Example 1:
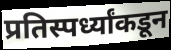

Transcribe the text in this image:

प्रतिस्पर्ध्यांकडून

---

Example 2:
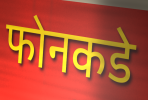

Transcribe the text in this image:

फोनकडे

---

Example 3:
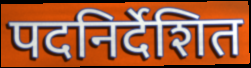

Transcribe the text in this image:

पदनिर्देशित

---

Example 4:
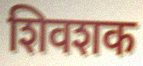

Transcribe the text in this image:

शिवशक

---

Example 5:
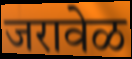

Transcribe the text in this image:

जरावेळ